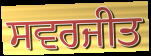
ਸਵਰਜੀਤ